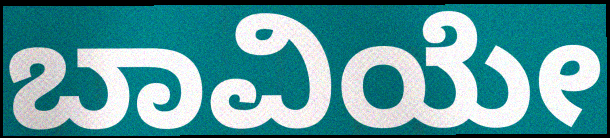
ಬಾವಿಯೇ